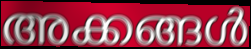
അക്കങ്ങൾ